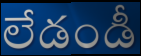
లేడండీ